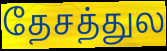
தேசத்துல